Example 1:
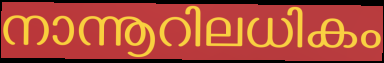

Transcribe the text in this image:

നാന്നൂറിലധികം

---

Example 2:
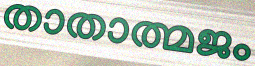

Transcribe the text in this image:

താതാത്മജം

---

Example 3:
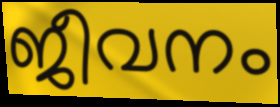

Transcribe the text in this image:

ജീവനം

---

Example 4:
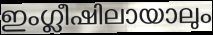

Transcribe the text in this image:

ഇംഗ്ലീഷിലായാലും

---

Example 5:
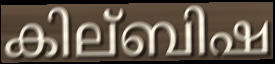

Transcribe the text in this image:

കില്ബിഷ